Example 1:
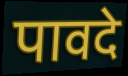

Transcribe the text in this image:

पावदे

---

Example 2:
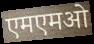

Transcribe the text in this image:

एमएमओ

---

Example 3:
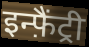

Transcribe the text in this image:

इन्फ़ैंट्री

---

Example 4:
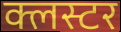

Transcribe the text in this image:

क्लस्टर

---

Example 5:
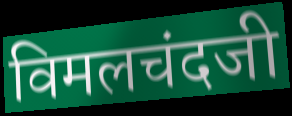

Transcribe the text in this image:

विमलचंदजी